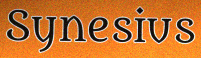
Synesius